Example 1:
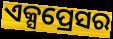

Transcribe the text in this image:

ଏକ୍ସପ୍ରେସର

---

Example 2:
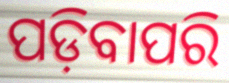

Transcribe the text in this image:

ପଡ଼ିବାପରି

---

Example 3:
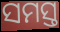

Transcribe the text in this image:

ସମସ୍ତ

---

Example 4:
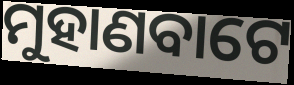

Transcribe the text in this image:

ମୁହାଣବାଟେ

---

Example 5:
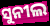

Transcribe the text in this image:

ସୁନୀଲ